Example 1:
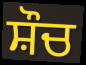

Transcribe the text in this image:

ਸ਼ੌਚ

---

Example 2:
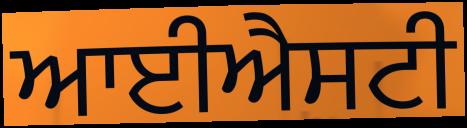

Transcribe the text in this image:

ਆਈਐਸਟੀ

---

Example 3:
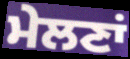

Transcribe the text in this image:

ਮੇਲਣਾਂ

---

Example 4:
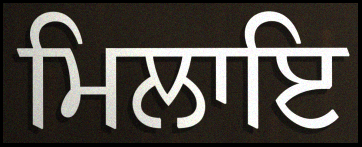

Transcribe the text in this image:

ਮਿਲਾਇ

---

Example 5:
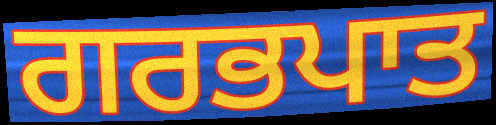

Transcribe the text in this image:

ਗਰਭਪਾਤ